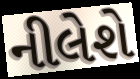
નીલેશે